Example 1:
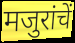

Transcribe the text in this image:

मजुरांचें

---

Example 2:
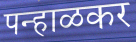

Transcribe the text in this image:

पन्हाळकर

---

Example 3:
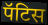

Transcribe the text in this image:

पॅटिस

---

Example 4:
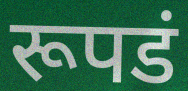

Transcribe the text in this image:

रूपडं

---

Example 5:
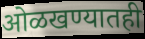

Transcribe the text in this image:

ओळखण्यातही